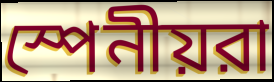
স্পেনীয়রা